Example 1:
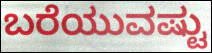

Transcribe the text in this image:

ಬರೆಯುವಷ್ಟು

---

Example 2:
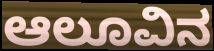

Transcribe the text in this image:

ಆಲೂವಿನ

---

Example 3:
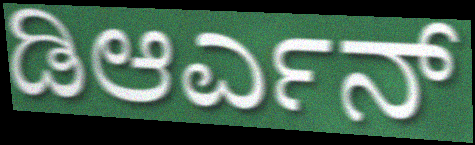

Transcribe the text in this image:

ಡಿಆರ್ಎನ್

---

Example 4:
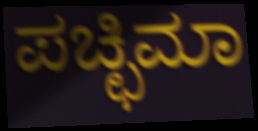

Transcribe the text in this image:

ಪಚ್ಛಿಮಾ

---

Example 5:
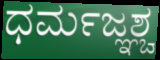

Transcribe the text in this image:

ಧರ್ಮಜ್ಞಶ್ಚ